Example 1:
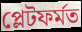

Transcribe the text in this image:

প্লেটফৰ্মত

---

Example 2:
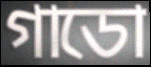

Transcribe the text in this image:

গাডো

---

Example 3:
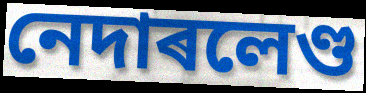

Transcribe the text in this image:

নেদাৰলেণ্ড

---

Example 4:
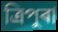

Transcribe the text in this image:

ত্ৰিপুৰা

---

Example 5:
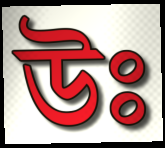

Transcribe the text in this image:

উঃ